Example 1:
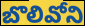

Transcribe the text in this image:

బొలివోని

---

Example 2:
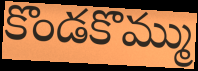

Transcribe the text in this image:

కొండకొమ్ము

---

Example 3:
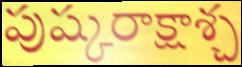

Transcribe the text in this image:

పుష్కరాక్షాశ్చ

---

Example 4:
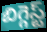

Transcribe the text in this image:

బిగ్గెస్ట్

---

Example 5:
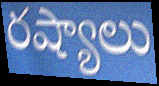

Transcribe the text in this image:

రష్యాలు